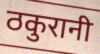
ठकुरानी